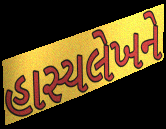
હાસ્યલેખને